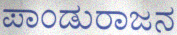
ಪಾಂಡುರಾಜನ